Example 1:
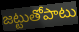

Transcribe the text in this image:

జట్టుతోపాటు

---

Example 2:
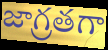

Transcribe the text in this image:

జాగ్రతగా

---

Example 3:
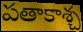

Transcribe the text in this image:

పతాకాశ్చ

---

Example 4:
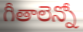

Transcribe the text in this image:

గీతాలెన్నో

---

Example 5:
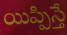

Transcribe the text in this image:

యిప్పిస్తే